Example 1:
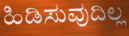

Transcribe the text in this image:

ಹಿಡಿಸುವುದಿಲ್ಲ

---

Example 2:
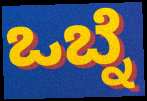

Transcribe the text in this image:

ಒಬ್ನೆ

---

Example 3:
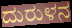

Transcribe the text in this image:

ದುರುಳನ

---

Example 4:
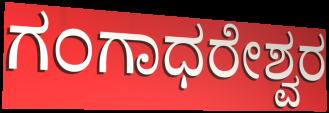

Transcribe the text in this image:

ಗಂಗಾಧರೇಶ್ವರ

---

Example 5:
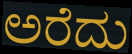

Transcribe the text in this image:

ಅರೆದು